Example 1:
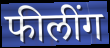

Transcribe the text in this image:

फीलींग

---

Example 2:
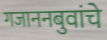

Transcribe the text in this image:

गजाननबुवांचे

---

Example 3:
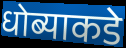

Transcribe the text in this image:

धोब्याकडे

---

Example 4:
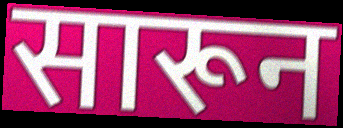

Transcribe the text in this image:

सारून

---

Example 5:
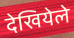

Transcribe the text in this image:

देखियेले